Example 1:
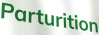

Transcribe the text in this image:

Parturition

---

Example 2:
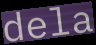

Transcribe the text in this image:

dela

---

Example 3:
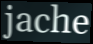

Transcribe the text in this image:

jache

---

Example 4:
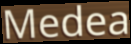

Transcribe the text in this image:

Medea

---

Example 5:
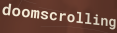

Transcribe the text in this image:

doomscrolling